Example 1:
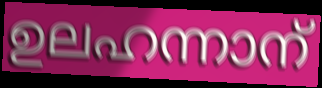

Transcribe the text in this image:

ഉലഹന്നാന്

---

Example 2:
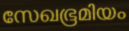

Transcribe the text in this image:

സേഖഭൂമിയം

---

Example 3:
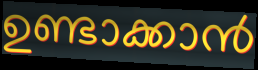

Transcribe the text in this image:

ഉണ്ടാക്കാൻ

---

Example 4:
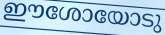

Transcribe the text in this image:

ഈശോയോടു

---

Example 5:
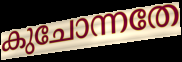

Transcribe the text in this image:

കുചോന്നതേ